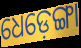
ଧେଡ଼େଙ୍ଗା